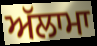
ਅੱਲਾਮਾ